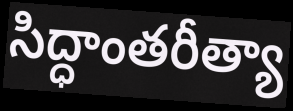
సిద్ధాంతరీత్యా